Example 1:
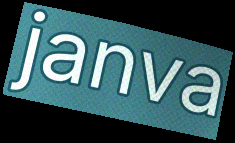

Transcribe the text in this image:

janva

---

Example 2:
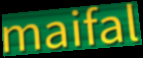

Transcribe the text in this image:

maifal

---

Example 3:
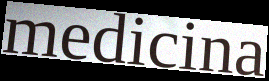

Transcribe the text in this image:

medicina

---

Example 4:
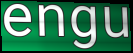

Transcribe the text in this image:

engu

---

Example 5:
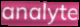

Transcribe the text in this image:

analyte